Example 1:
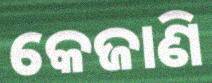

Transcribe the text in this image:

କେଜାଣି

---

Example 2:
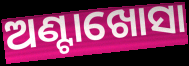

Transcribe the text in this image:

ଅଣ୍ଟାଖୋସା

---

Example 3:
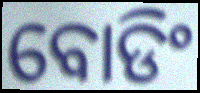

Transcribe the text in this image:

ବୋଡିଂ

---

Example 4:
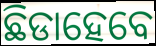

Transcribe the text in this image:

ଛିଡାହେବେ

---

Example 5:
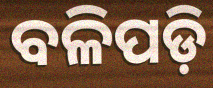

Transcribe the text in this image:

ବଳିପଡ଼ି